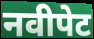
नवीपेट